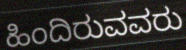
ಹಿಂದಿರುವವರು